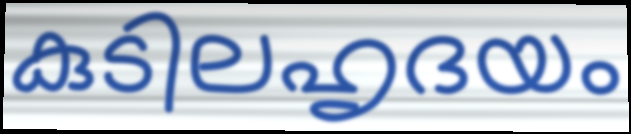
കുടിലഹൃദയം